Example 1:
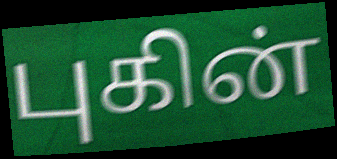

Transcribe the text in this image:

புகின்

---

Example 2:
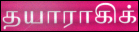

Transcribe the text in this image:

தயாராகிக்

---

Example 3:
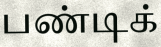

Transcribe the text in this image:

பண்டிக்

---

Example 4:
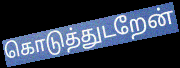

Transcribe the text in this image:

கொடுத்துடறேன்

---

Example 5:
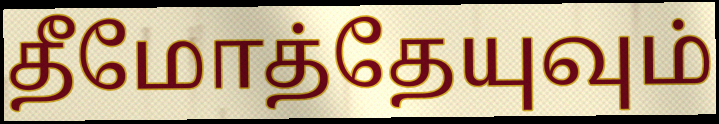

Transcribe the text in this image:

தீமோத்தேயுவும்